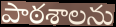
పాఠశాలను